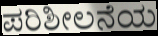
ಪರಿಶೀಲನೆಯ